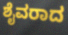
ಶೈವರಾದ